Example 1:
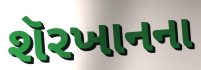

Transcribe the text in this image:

શૅરખાનના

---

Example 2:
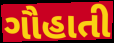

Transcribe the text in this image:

ગૌહાતી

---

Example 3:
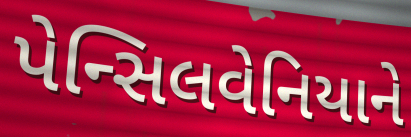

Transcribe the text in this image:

પેન્સિલવેનિયાને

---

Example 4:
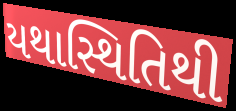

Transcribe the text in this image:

યથાસ્થિતિથી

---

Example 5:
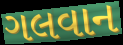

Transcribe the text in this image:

ગલવાન